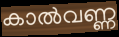
കാൽവണ്ണ